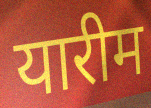
यारीम